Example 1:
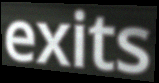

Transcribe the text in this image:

exits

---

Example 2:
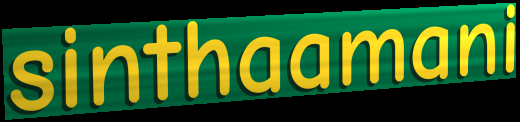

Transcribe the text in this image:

sinthaamani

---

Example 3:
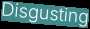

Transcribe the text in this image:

Disgusting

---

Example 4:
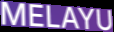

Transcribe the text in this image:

MELAYU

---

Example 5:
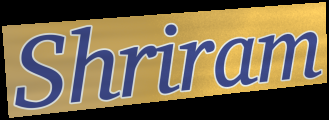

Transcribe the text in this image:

Shriram